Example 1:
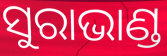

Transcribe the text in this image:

ସୁରାଭାଣ୍ଡ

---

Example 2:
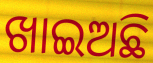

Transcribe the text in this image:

ଖାଇଅଛି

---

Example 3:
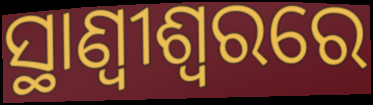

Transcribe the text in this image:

ସ୍ଥାଣ୍ୱୀଶ୍ୱରରେ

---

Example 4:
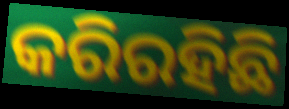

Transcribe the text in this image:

କରିରହିଛି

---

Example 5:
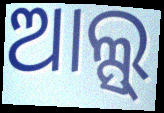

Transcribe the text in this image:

ଆଲ୍ସ୍